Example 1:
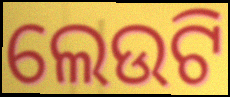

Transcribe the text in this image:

ଲେଉଟି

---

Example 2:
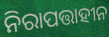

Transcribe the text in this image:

ନିରାପତ୍ତାହୀନ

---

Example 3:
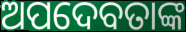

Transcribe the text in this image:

ଅପଦେବତାଙ୍କ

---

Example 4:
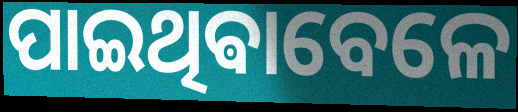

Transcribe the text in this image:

ପାଇଥିଵାବେଳେ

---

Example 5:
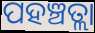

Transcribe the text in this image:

ପହଞ୍ଚତ୍ଲା